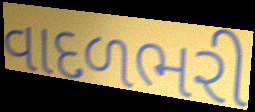
વાદળભરી